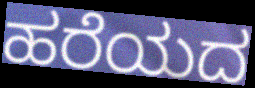
ಹರೆಯದ